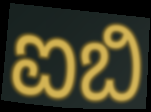
ಐಬಿ